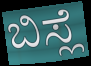
ಬಿಸ್ಲೆ